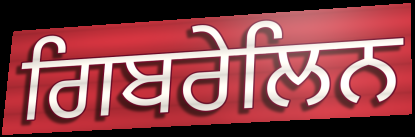
ਗਿਬਰੇਲਿਨ